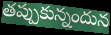
తప్పుకున్నందున